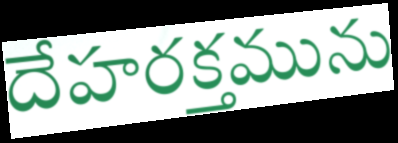
దేహరక్తమును